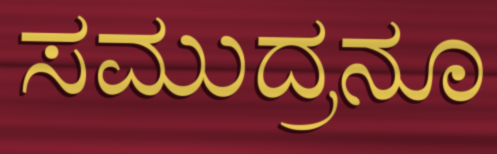
ಸಮುದ್ರನೂ